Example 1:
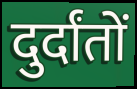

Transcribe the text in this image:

दुर्दांतों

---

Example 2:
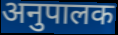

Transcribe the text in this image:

अनुपालक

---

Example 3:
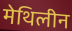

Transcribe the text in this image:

मेथिलीन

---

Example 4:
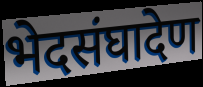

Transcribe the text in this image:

भेदसंघादेण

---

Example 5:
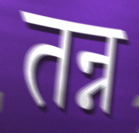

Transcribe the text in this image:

तन्न